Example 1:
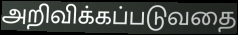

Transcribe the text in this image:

அறிவிக்கப்படுவதை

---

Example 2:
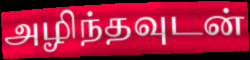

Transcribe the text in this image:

அழிந்தவுடன்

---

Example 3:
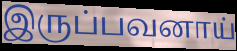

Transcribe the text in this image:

இருப்பவனாய்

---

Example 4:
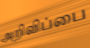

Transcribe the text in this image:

அறிவிப்பை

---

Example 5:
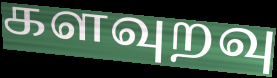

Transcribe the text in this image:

களவுறவு